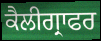
ਕੈਲੀਗ੍ਰਾਫਰ